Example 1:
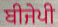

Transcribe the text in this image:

ਬੀਜੇਪੀ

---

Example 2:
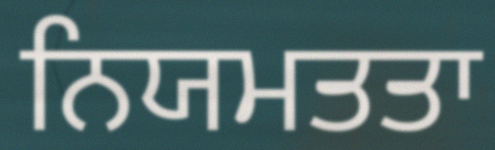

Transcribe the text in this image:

ਨਿਯਮਤਤਾ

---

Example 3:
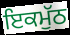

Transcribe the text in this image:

ਇਕਮੁੱਠ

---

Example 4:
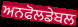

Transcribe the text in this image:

ਅਨਫੋਲਡੇਬਲ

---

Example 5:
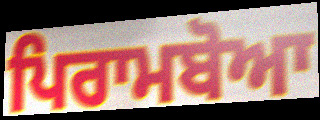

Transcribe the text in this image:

ਪਿਰਾਮਬੋਆ